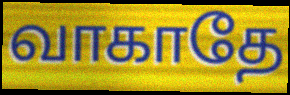
வாகாதே